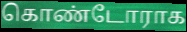
கொண்டோராக